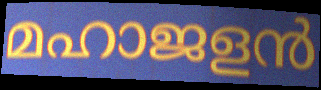
മഹാജളൻ